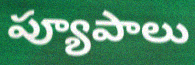
ప్యూపాలు